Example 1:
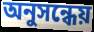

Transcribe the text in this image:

অনুসন্ধেয়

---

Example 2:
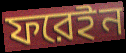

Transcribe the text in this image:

ফরেইন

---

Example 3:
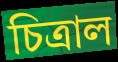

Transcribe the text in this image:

চিত্রাল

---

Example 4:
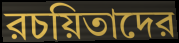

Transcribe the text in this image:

রচয়িতাদের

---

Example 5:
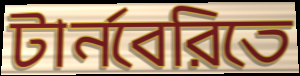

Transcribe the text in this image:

টার্নবেরিতে